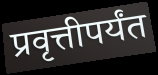
प्रवृत्तीपर्यंत